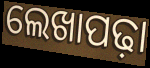
ଲେଖାପଢ଼ା